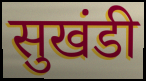
सुखंडी